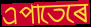
এপাতেৰে